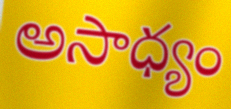
అసాధ్యం